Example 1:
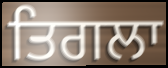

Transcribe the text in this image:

ਤਿਗਲਾ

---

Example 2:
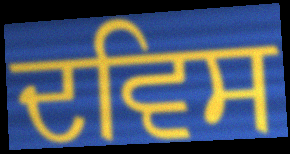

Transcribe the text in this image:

ਦਵਿਸ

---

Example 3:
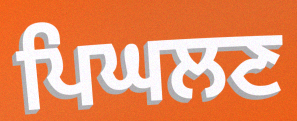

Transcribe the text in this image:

ਪਿਘਲਣ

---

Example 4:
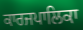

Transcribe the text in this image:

ਕਾਰਜਪਾਲਿਕਾ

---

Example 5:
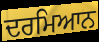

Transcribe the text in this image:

ਦਰਮਿਆਨ